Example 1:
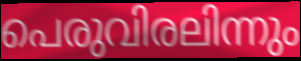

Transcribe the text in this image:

പെരുവിരലിന്നും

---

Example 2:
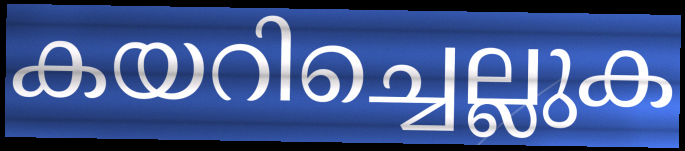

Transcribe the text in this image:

കയറിച്ചെല്ലുക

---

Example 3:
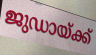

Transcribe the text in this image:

ജുഡായ്ക്ക്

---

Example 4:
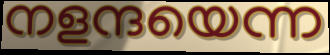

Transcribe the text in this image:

നളന്ദയെന്ന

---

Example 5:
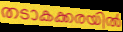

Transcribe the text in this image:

തടാകക്കരയിൽ